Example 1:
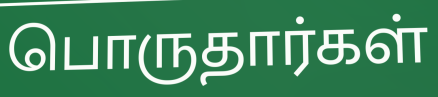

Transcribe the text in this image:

பொருதார்கள்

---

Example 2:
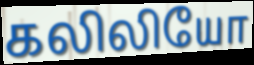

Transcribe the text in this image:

கலிலியோ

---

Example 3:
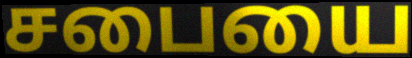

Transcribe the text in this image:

சபையை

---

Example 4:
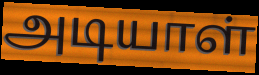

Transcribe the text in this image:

அடியாள்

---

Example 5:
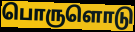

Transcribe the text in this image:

பொருளொடு